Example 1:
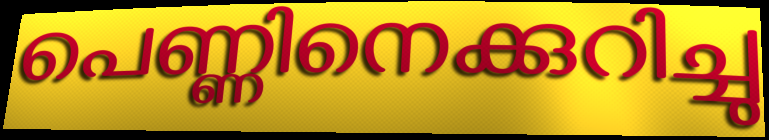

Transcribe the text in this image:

പെണ്ണിനെക്കുറിച്ചു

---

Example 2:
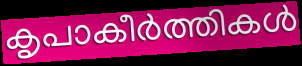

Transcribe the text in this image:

കൃപാകീർത്തികൾ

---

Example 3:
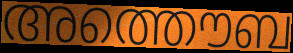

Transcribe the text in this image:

അത്തൌബ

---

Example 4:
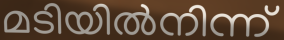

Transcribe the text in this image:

മടിയിൽനിന്ന്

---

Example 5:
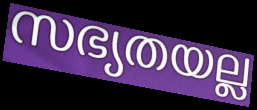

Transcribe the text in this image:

സഭ്യതയല്ല